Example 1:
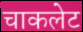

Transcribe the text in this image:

चाकलेट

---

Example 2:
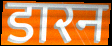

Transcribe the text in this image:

डारन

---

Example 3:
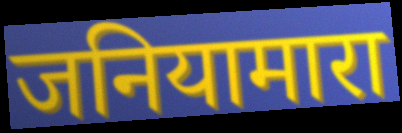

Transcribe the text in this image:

जनियामारा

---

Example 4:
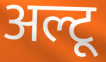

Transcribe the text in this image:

अल्टू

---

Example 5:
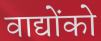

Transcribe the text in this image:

वाद्योंको